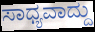
ಸಾಧ್ಯವಾದ್ದು